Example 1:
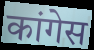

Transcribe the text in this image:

कांगेस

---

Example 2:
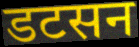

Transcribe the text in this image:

डटसन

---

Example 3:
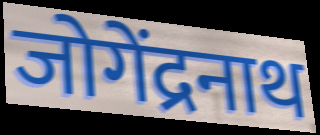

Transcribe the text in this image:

जोगेंद्रनाथ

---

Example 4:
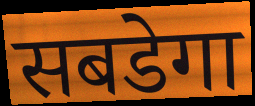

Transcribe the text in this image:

सबडेगा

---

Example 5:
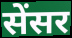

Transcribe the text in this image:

सेंसर